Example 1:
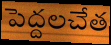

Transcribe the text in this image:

పెద్దలచేత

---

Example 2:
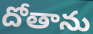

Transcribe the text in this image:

దోతాను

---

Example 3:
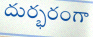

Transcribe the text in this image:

దుర్భరంగా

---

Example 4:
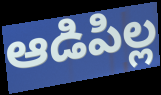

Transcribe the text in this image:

ఆడిపిల్ల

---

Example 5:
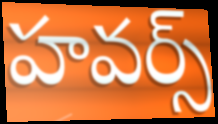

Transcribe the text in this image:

హవర్స్